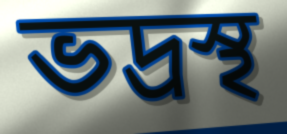
ভদ্রস্থ